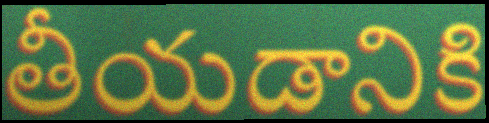
తీయడానికి